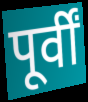
पूर्वीं